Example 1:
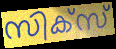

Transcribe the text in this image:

സിക്സ്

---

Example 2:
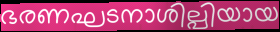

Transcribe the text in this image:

ഭരണഘടനാശില്പിയായ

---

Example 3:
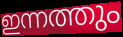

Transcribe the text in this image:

ഇന്നത്തും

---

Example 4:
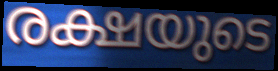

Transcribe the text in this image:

രക്ഷയുടെ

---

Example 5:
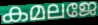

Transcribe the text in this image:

കമലജേ